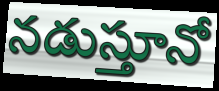
నడుస్తూనో